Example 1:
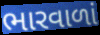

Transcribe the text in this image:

ભારવાળાં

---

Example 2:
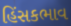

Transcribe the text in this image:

હિંસકભાવ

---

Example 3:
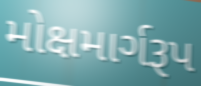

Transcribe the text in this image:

મોક્ષમાર્ગરૂપ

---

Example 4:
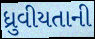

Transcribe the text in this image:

ધ્રુવીયતાની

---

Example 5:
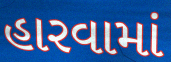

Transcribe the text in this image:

હારવામાં